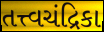
તત્ત્વચંદ્રિકા